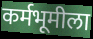
कर्मभूमीला